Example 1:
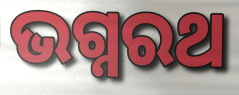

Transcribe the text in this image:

ଭଗ୍ନରଥ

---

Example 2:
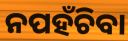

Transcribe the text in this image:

ନପହଁଚିବା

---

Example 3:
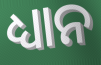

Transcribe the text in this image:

ଧ୍ୟାନ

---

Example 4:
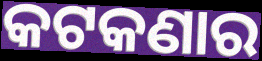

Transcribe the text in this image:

କଟକଣାର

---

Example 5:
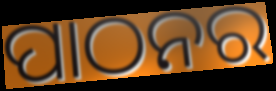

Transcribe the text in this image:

ପାଠନର